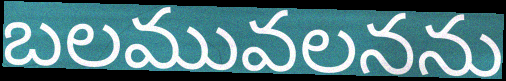
బలమువలనను